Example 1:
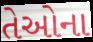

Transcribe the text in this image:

તેઓના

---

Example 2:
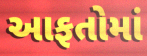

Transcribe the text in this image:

આફતોમાં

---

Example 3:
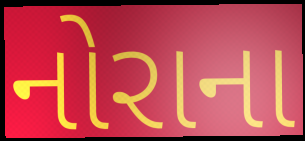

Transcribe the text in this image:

નોરાના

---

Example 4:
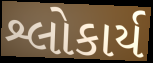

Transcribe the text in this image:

શ્લોકાર્ય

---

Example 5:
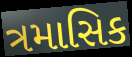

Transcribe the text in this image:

ત્રમાસિક